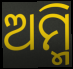
ଅମ୍ମି